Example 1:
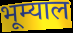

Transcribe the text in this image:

भूम्याल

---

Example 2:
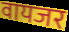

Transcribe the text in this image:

वायजर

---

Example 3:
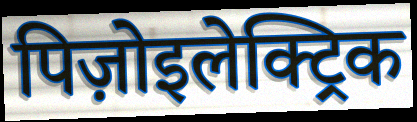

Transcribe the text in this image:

पिज़ोइलेक्ट्रिक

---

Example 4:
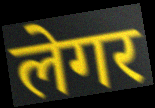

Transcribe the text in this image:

लेगर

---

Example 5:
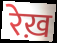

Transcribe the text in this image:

रेख़